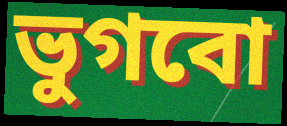
ভুগবো